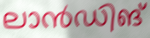
ലാൻഡിങ്